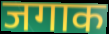
जगाक